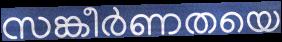
സങ്കീർണതയെ